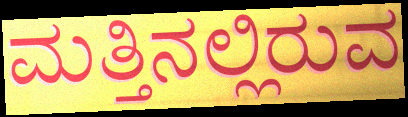
ಮತ್ತಿನಲ್ಲಿರುವ